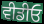
ਵੀਡੀਓ